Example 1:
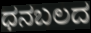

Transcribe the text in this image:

ಧನಬಲದ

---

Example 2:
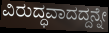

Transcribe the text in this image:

ವಿರುದ್ಧವಾದದ್ದನ್ನೇ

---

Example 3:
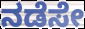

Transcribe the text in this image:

ನಡೆಸೇ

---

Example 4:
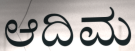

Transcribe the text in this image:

ಆದಿಮ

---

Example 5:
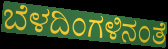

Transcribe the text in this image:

ಬೆಳದಿಂಗಳಿನಂತೆ